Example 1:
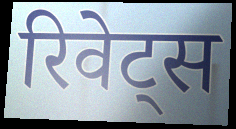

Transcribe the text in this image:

रिवेट्स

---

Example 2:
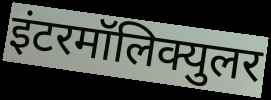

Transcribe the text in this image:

इंटरमॉलिक्युलर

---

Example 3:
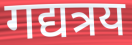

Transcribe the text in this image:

गद्यत्रय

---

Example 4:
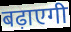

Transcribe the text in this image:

बढ़ाएगी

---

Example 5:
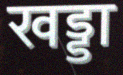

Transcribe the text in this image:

खड्डा